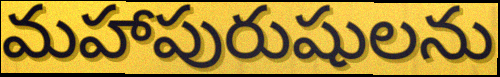
మహాపురుషులను